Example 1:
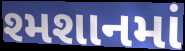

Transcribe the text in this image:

શ્મશાનમાં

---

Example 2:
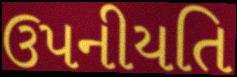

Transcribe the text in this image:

ઉપનીયતિ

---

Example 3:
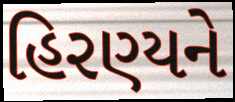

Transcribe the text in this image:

હિરણ્યને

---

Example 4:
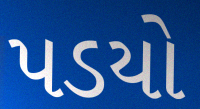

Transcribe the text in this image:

પડયો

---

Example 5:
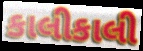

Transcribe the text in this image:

કાલીકાલી